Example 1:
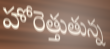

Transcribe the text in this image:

హోరెత్తుతున్న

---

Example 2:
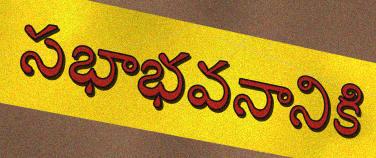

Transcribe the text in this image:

సభాభవనానికి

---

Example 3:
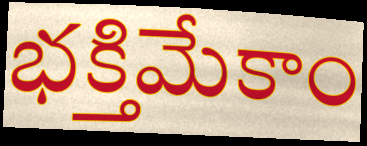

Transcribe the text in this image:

భక్తిమేకాం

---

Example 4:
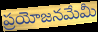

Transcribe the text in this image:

ప్రయోజనమేమీ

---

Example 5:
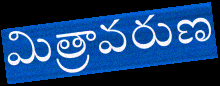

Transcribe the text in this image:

మిత్రావరుణ